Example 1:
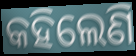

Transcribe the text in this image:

କହିଲେଣି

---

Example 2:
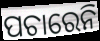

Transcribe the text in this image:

ପଚାରେନି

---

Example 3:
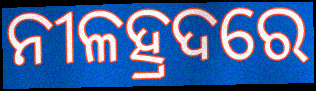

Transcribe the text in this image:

ନୀଳହ୍ରଦରେ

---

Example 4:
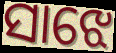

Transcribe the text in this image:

ସାଝେ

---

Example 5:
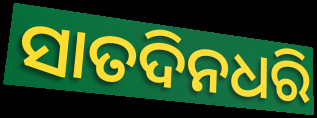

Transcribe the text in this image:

ସାତଦିନଧରି